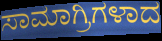
ಸಾಮಾಗ್ರಿಗಳಾದ